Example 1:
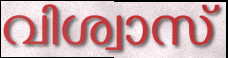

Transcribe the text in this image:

വിശ്വാസ്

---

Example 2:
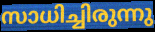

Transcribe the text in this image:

സാധിച്ചിരുന്നു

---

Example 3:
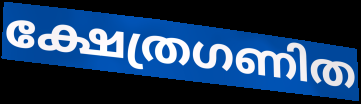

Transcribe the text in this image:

ക്ഷേത്രഗണിത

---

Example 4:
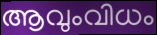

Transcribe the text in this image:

ആവുംവിധം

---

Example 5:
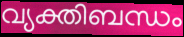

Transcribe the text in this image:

വ്യക്തിബന്ധം